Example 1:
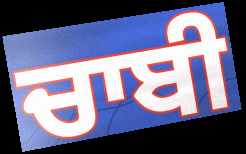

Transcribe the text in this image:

ਚਾਬੀ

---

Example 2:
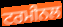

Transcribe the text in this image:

ਟਰਮੀਨਲ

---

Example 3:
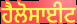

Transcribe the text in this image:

ਹੈਲੋਸਾਈਟ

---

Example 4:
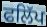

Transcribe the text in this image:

ਫਲਿੱਪ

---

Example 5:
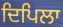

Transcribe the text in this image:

ਦਿਪਿਲਾ